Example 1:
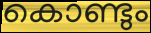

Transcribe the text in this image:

കൊണ്ടും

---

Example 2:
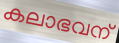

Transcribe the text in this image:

കലാഭവന്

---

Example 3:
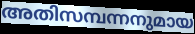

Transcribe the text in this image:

അതിസമ്പന്നനുമായ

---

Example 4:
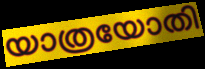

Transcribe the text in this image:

യാത്രയോതി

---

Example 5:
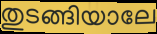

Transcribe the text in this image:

തുടങ്ങിയാലേ